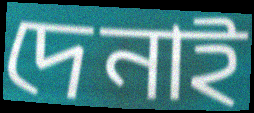
দেনাই